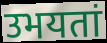
उभयतां